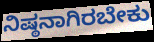
ನಿಷ್ಠನಾಗಿರಬೇಕು